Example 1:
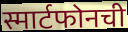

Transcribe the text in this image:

स्मार्टफोनची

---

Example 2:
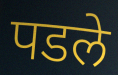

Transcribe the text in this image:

पडले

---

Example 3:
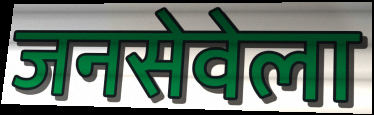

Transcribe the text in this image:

जनसेवेला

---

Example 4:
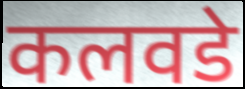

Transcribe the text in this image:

कलवडे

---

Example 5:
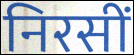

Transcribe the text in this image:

निरसीं